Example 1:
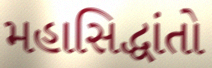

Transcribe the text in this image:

મહાસિદ્ધાંતો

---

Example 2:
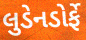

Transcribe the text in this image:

લુડેનડોર્ફે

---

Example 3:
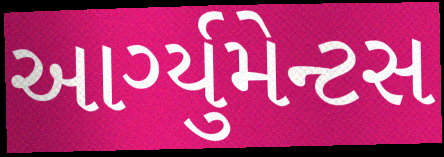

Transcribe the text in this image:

આર્ગ્યુમેન્ટસ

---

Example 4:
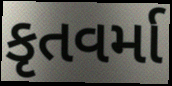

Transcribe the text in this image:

કૃતવર્મા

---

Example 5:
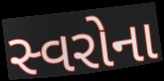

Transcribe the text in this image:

સ્વરોના